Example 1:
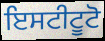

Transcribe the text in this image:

ਇਸਟੀਟੂਟੋ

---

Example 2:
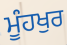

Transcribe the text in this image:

ਮੂੰਹਖੁਰ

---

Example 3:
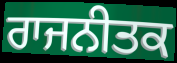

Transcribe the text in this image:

ਰਾਜਨੀਤਕ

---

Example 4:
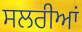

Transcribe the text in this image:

ਸਲਰੀਆਂ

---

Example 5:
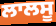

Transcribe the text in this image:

ਲਾਲਸੂ